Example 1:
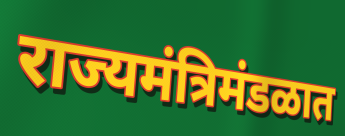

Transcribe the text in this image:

राज्यमंत्रिमंडळात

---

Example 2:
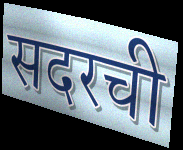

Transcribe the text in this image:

सदरची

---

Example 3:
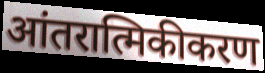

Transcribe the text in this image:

आंतरात्मिकीकरण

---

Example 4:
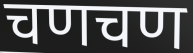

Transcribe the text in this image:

चणचण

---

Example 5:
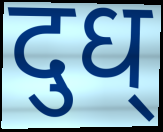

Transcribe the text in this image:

दुध्